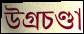
উগ্রচণ্ডা